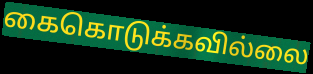
கைகொடுக்கவில்லை